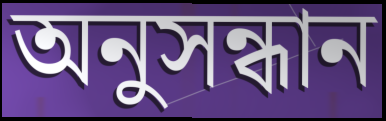
অনুসন্ধান